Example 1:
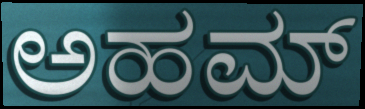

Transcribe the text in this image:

ಅಹಮ್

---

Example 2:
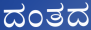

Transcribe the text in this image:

ದಂತದ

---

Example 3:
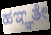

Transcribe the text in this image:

ಹಞ್ಞತೇ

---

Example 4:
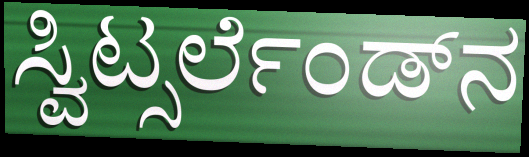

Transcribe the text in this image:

ಸ್ವಿಟ್ಸರ್ಲೆಂಡ್‌ನ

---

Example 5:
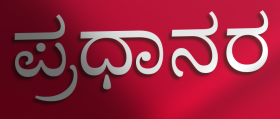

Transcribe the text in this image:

ಪ್ರಧಾನರ